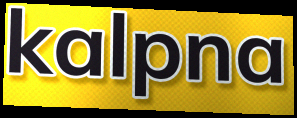
kalpna